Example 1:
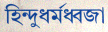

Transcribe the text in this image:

হিন্দুধর্মধ্বজা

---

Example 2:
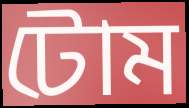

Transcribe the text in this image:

টোম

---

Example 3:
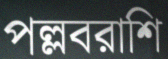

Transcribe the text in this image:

পল্লবরাশি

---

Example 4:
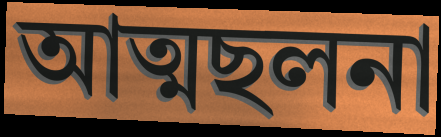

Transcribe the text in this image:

আত্মছলনা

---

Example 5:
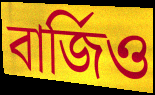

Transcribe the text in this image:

বার্জিও